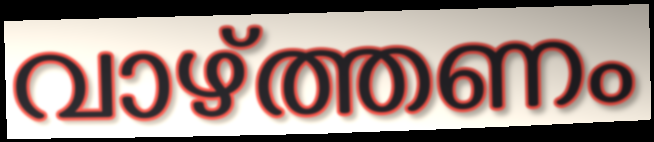
വാഴ്ത്തണം